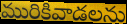
మురికివాడలను